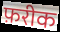
फ़रीक